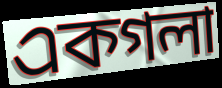
একগলা